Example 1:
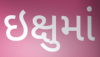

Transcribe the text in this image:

ઇક્ષુમાં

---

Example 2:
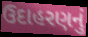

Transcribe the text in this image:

ઉદાહરણનું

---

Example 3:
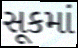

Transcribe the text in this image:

સૂકમાં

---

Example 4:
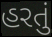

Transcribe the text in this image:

હરતું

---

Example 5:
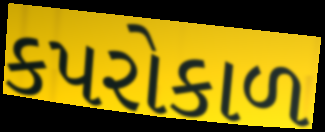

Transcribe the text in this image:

કપરોકાળ